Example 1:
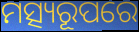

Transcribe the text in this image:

ମତ୍ସ୍ୟରୂପରେ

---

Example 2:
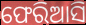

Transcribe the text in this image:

ଫେରିଆସି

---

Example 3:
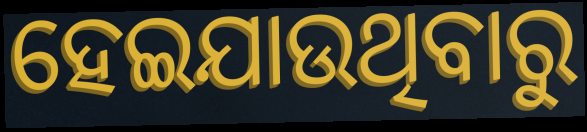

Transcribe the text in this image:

ହେଇଯାଉଥିବାରୁ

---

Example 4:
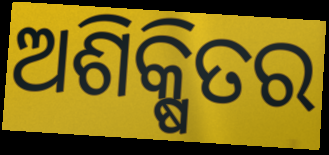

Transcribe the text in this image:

ଅଶିକ୍ଷିତର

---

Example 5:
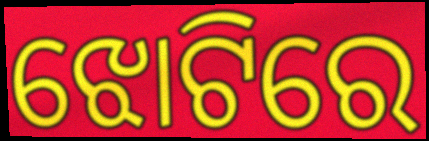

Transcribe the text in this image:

ଝୋଟିରେ